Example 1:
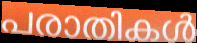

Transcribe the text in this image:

പരാതികൾ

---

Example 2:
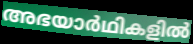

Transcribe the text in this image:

അഭയാർഥികളിൽ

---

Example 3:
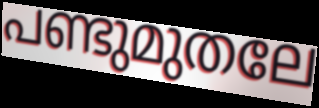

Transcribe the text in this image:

പണ്ടുമുതലേ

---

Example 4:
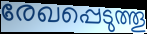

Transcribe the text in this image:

രേഖപ്പെടുത്തൂ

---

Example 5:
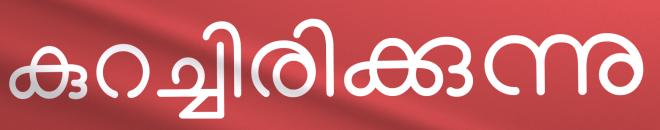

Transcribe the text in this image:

കുറച്ചിരിക്കുന്നു